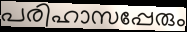
പരിഹാസപ്പേരും